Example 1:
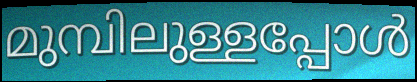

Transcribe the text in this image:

മുമ്പിലുള്ളപ്പോൾ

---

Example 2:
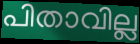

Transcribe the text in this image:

പിതാവില്ല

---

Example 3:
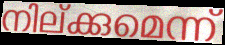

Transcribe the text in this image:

നില്ക്കുമെന്ന്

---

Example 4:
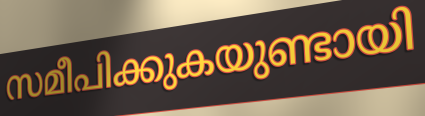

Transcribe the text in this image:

സമീപിക്കുകയുണ്ടായി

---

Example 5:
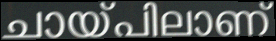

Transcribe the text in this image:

ചായ്പിലാണ്